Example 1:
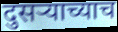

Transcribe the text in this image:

दुसऱ्याच्याच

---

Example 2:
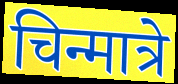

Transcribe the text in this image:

चिन्मात्रे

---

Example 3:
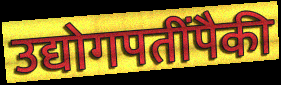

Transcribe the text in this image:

उद्योगपतींपैकी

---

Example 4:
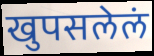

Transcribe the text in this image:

खुपसलेलं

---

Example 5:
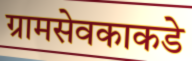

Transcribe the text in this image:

ग्रामसेवकाकडे